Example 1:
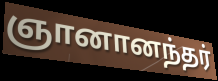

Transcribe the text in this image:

ஞானானந்தர்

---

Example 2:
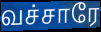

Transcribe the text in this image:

வச்சாரே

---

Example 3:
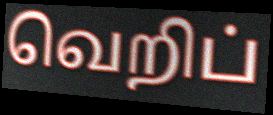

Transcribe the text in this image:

வெறிப்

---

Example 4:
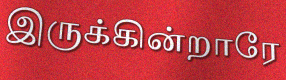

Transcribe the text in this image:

இருக்கின்றாரே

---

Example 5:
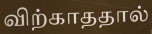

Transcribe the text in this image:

விற்காததால்